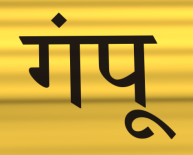
गंपू